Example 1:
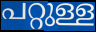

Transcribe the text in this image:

പറ്റുള്ള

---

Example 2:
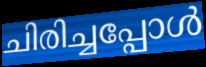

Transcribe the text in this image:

ചിരിച്ചപ്പോൾ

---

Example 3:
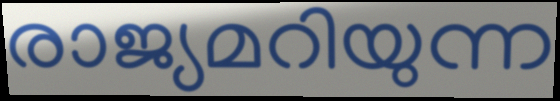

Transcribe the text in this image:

രാജ്യമറിയുന്ന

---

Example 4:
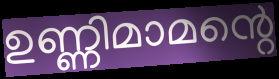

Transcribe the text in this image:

ഉണ്ണിമാമന്റെ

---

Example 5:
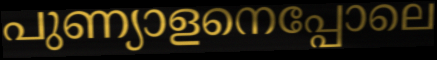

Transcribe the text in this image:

പുണ്യാളനെപ്പോലെ